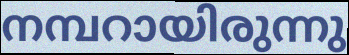
നമ്പറായിരുന്നു